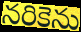
నరికెను